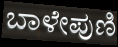
ಬಾಳೇಪುಣಿ